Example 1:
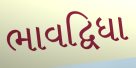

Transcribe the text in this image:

ભાવદ્વિધા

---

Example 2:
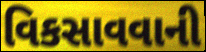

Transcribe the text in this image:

વિકસાવવાની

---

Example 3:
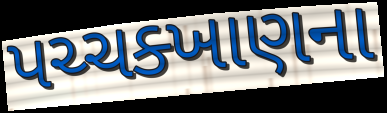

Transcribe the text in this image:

પચ્ચક્ખાણના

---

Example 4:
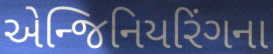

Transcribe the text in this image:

એન્જિનિયરિંગના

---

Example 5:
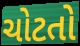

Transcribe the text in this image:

ચોટતો